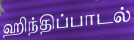
ஹிந்திப்பாடல்